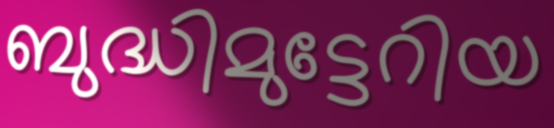
ബുദ്ധിമുട്ടേറിയ